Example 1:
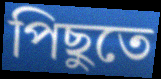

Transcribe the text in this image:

পিছুতে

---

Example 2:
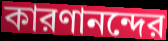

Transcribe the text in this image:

কারণানন্দের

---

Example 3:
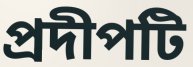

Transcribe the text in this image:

প্রদীপটি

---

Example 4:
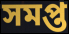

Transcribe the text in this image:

সমপ্ত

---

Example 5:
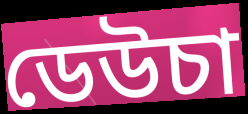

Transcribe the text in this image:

ডেউচা